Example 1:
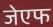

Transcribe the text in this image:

जेएफ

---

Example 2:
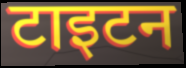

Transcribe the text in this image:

टाइटन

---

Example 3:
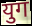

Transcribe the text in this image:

युग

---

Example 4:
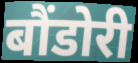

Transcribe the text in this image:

बौंडोरी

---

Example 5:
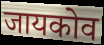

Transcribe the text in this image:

जायकोव